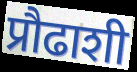
प्रौढाशी